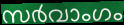
സർവാംഗം